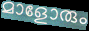
മാളോരും